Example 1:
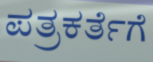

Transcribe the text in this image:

ಪತ್ರಕರ್ತೆಗೆ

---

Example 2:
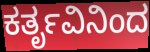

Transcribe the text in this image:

ಕರ್ತೃವಿನಿಂದ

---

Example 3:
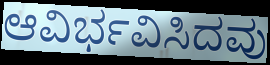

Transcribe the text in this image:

ಆವಿರ್ಭವಿಸಿದವು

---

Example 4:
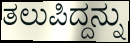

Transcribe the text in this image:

ತಲುಪಿದ್ದನ್ನು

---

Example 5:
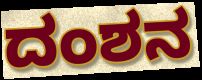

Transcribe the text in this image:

ದಂಶನ